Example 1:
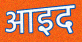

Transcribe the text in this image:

आइद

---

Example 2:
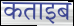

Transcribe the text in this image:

कताइब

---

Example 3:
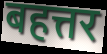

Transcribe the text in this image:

बहत्तर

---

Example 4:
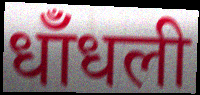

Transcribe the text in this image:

धॉँधली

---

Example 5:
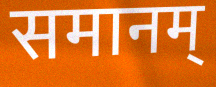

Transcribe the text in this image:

समानम्